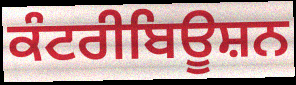
ਕੰਟਰੀਬਿਊਸ਼ਨ